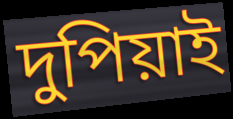
দুপিয়াই